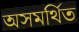
অসমর্থিত